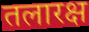
तलारक्ष